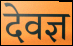
देवज्ञ